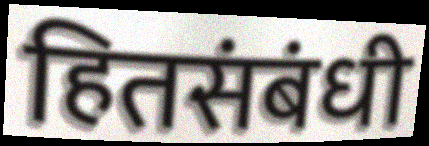
हितसंबंधी